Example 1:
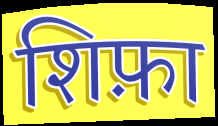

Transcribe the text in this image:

शिफ़ा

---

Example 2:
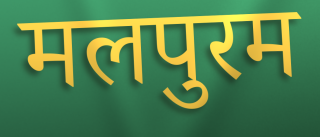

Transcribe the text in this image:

मलपुरम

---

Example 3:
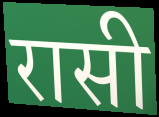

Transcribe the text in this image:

रासी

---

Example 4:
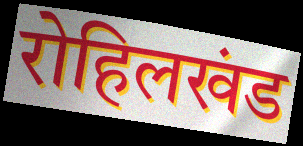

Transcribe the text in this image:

रोहिलखंड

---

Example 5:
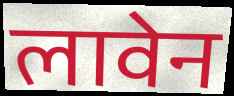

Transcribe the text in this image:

लावेन